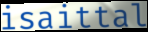
isaittal